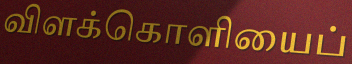
விளக்கொளியைப்